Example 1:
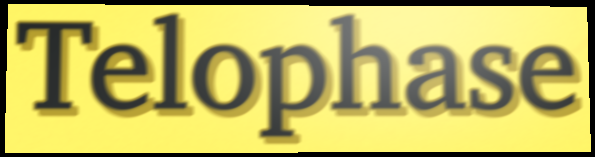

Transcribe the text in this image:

Telophase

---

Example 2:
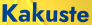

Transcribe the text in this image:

Kakuste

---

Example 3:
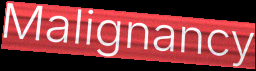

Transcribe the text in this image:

Malignancy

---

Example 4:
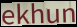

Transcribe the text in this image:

ekhun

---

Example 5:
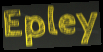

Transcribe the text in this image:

Epley